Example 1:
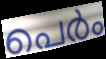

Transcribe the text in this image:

പെർം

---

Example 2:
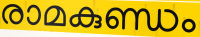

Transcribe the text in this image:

രാമകുണ്ഡം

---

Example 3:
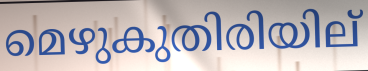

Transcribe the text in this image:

മെഴുകുതിരിയില്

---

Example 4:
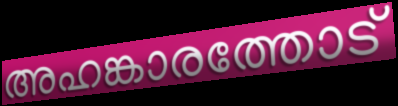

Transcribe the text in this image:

അഹങ്കാരത്തോട്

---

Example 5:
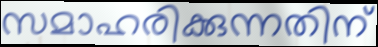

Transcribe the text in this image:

സമാഹരിക്കുന്നതിന്